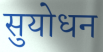
सुयोधन